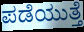
ಪಡೆಯುತ್ತೆ